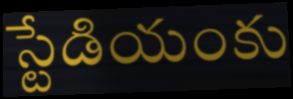
స్టేడియంకు